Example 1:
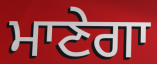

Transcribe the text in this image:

ਮਾਣੇਗਾ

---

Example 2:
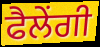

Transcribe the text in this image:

ਫੈਲੇਂਗੀ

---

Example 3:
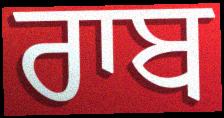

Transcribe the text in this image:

ਰਾਬ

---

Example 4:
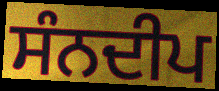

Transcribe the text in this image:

ਸੰਨਦੀਪ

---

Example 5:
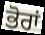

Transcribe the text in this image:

ਭੋਰਾਂ